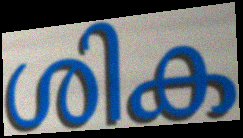
ശിക